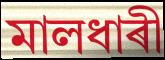
মালধাৰী